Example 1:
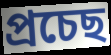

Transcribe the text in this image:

প্ৰচেছ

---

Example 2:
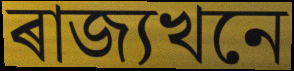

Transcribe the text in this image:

ৰাজ্যখনে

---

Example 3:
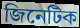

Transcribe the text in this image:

জিনেটিক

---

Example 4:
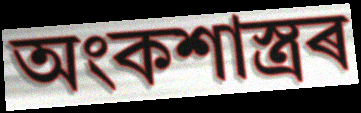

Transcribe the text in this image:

অংকশাস্ত্ৰৰ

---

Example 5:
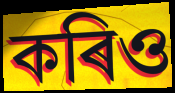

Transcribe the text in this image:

কৰিও